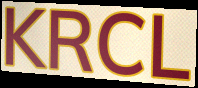
KRCL